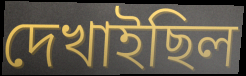
দেখাইছিল